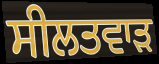
ਸੀਲਤਵਾੜ